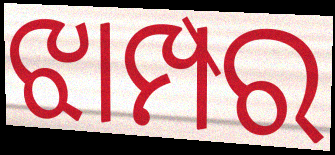
ଝାମ୍ପର